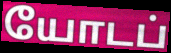
யோடப்